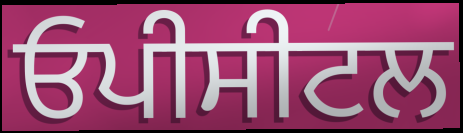
ਓਪੀਸੀਟਲ